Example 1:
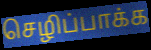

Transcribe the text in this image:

செழிப்பாக்க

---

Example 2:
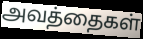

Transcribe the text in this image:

அவத்தைகள்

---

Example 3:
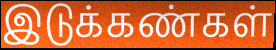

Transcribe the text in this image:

இடுக்கண்கள்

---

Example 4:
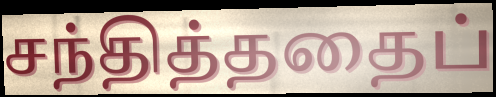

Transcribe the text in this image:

சந்தித்ததைப்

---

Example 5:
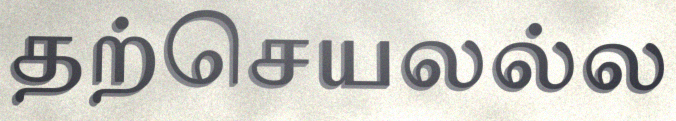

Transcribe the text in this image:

தற்செயலல்ல